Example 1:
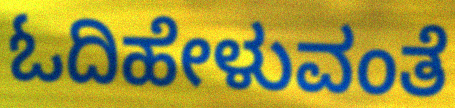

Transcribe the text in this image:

ಓದಿಹೇಳುವಂತೆ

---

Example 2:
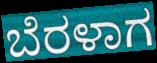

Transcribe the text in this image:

ಬೆರಳಾಗ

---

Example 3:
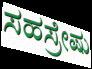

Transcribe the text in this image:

ಸಹಸ್ರೇಷು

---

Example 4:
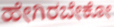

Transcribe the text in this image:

ಹೇಗಿರಬೇಕೋ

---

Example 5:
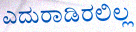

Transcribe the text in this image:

ಎದುರಾಡಿರಲಿಲ್ಲ